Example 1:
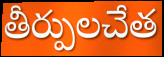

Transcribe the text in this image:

తీర్పులచేత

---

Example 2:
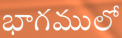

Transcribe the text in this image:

భాగములో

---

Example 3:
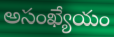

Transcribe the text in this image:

అసంఖ్యేయం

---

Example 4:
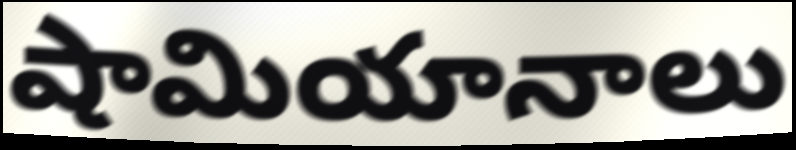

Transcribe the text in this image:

షామియానాలు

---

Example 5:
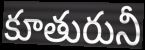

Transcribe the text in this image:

కూతురునీ